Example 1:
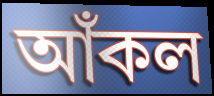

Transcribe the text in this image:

আঁকল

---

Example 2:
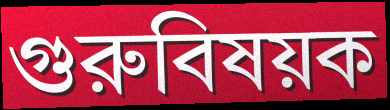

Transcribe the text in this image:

গুরুবিষয়ক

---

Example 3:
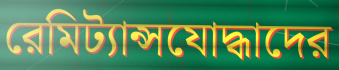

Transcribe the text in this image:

রেমিট্যান্সযোদ্ধাদের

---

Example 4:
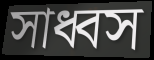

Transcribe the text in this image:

সাধ্বস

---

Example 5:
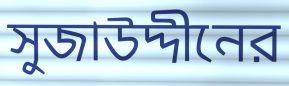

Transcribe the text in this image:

সুজাউদ্দীনের